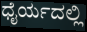
ಧೈರ್ಯದಲ್ಲಿ